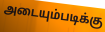
அடையும்படிக்கு